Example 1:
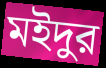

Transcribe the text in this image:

মইদুর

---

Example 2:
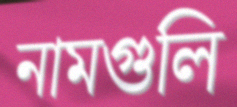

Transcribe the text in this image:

নামগুলি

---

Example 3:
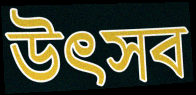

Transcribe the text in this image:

উত্‍সব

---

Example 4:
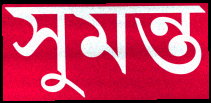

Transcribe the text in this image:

সুমন্ত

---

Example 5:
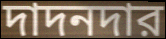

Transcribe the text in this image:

দাদনদার